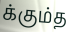
க்கும்த